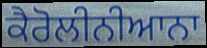
ਕੈਰੋਲੀਨੀਆਨਾ